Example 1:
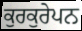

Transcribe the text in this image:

ਕੁਰਕੁਰੇਪਨ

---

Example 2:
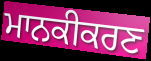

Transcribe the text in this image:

ਮਾਨਕੀਕਰਣ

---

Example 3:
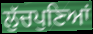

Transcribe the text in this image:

ਲੁੱਚਪੁਣਿਆਂ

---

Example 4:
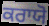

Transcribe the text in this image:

ਕਰਾਯੋ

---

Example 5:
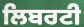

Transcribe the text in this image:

ਲਿਬਰਟੀ